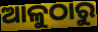
ଆଳୁଠାରୁ